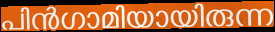
പിൻഗാമിയായിരുന്ന